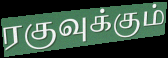
ரகுவுக்கும்